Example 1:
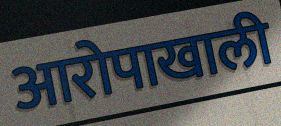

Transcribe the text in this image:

आरोपाखाली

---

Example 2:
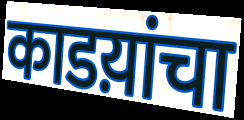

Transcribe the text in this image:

काडय़ांचा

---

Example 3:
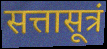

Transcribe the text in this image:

सत्तासूत्रं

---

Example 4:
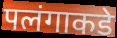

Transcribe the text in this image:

पलंगाकडे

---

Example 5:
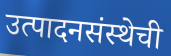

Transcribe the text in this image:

उत्पादनसंस्थेची